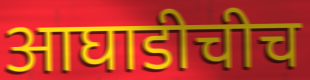
आघाडीचीच